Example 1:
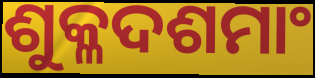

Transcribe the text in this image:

ଶୁକ୍ଳଦଶମାଂ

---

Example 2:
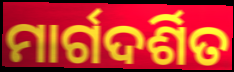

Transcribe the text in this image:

ମାର୍ଗଦର୍ଶିତ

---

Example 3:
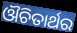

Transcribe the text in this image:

ଔଚିତାର୍ଥର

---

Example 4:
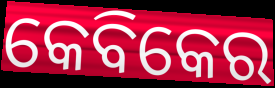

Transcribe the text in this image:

କେବିକେର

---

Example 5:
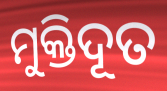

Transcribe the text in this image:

ମୁକ୍ତିଦୂତ